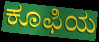
ಕೂಫಿಯ